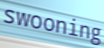
swooning